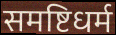
समष्टिधर्म